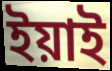
ইয়াই